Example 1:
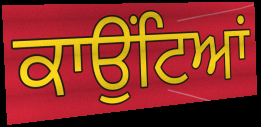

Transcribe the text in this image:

ਕਾਉਂਟਿਆਂ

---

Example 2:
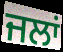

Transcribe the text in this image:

ਜਲਾਂ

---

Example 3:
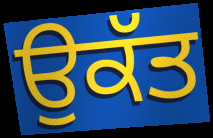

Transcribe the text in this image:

ਉਕੱਤ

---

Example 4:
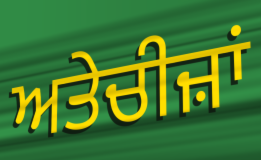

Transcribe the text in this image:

ਅਤੇਚੀਜ਼ਾਂ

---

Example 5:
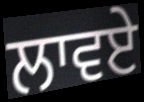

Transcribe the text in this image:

ਲਾਵਏ